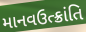
માનવઉત્ક્રાંતિ